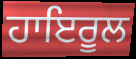
ਹਾਇਰੂਲ